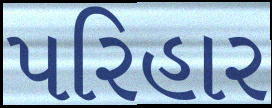
પરિહાર